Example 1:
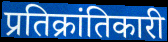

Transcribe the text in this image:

प्रतिक्रांतिकारी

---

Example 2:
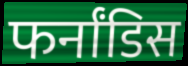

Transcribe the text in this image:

फर्नांडिस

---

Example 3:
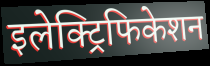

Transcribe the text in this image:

इलेक्ट्रिफिकेशन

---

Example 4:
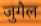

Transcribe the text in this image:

जुगैल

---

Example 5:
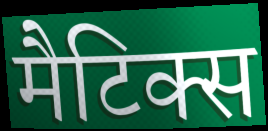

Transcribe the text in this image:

मैटिक्स